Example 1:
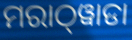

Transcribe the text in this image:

ମରାଠ୍‌ୱାଡା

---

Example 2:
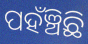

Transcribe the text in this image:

ପହଁଞ୍ଚିଛି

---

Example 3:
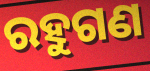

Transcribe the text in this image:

ରହୁଗଣ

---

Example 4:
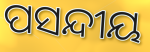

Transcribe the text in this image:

ପସନ୍ଦୀୟ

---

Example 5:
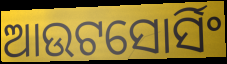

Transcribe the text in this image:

ଆଉଟସୋର୍ସିଂ